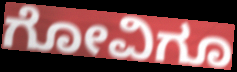
ಗೋವಿಗೂ